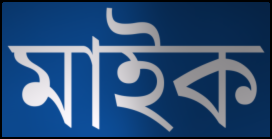
মাইক